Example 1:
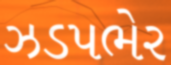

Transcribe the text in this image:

ઝડપભેર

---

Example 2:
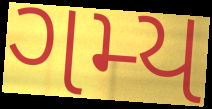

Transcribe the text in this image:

ગમ્ય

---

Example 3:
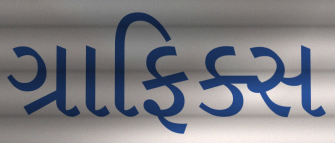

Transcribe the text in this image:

ગ્રાફિક્સ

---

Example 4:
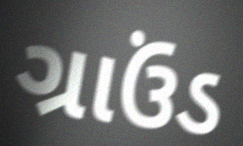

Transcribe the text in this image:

ગ્રાઉંડ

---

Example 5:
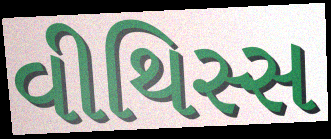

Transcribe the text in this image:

વીથિસ્સ